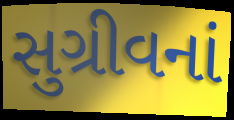
સુગ્રીવનાં